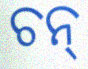
ଚନ୍